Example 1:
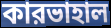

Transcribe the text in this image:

কারভাহাল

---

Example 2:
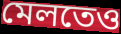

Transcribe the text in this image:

মেলতেও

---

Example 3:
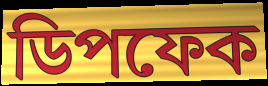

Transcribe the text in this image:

ডিপফেক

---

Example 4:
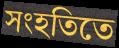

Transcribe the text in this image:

সংহতিতে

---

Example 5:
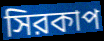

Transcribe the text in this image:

সিরকাপ